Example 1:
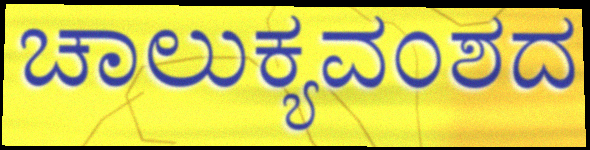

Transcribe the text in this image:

ಚಾಲುಕ್ಯವಂಶದ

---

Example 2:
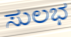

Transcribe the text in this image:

ಸುಲಭ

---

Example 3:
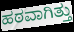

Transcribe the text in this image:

ಹಠವಾಗಿತ್ತು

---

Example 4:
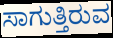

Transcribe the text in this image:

ಸಾಗುತ್ತಿರುವ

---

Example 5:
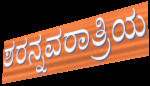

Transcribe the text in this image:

ಶರನ್ನವರಾತ್ರಿಯ